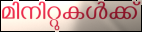
മിനിറ്റുകൾക്ക്